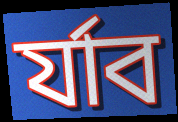
র্যাব